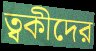
ত্বকীদের